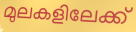
മുലകളിലേക്ക്